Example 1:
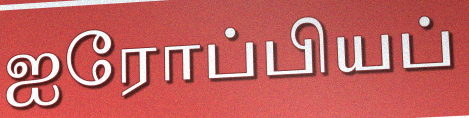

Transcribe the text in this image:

ஐரோப்பியப்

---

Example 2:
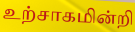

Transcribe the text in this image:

உற்சாகமின்றி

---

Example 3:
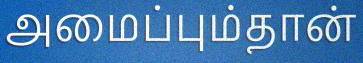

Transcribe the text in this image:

அமைப்பும்தான்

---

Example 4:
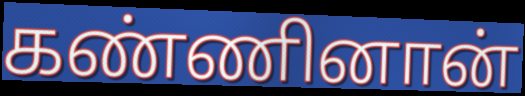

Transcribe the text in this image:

கண்ணினான்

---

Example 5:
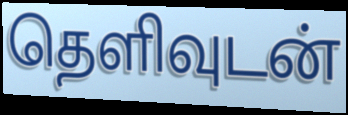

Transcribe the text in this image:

தெளிவுடன்